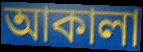
আকালা